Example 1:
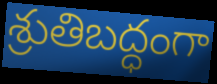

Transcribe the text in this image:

శ్రుతిబద్ధంగా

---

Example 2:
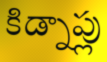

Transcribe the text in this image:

కిడ్నాప్లు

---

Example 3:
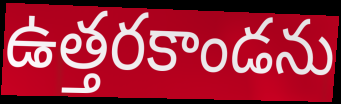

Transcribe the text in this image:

ఉత్తరకాండను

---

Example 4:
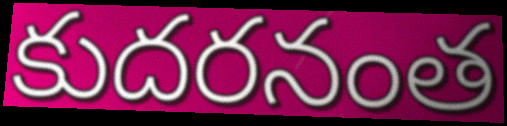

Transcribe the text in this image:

కుదరనంత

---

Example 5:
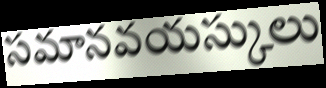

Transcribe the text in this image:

సమానవయస్కులు